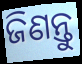
ଜିଣନ୍ତୁ